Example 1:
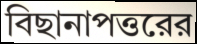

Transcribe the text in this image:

বিছানাপত্তরের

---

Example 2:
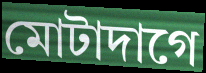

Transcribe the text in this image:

মোটাদাগে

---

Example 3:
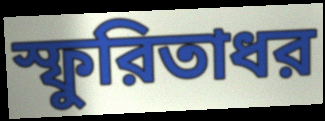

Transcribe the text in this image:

স্ফুরিতাধর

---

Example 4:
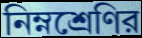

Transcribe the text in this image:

নিম্নশ্রেণির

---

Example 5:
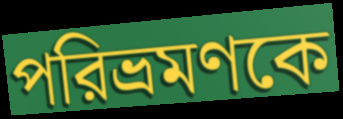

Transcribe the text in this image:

পরিভ্রমণকে